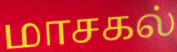
மாசகல்